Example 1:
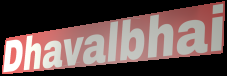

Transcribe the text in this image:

Dhavalbhai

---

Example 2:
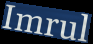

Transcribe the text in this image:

Imrul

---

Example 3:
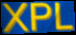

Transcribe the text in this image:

XPL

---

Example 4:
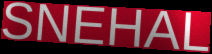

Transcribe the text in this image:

SNEHAL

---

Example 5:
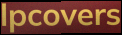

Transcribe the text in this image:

lpcovers